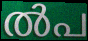
ൽപ